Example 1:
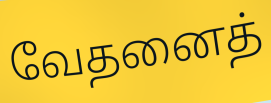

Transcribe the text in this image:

வேதனைத்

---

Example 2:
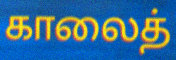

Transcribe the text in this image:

காலைத்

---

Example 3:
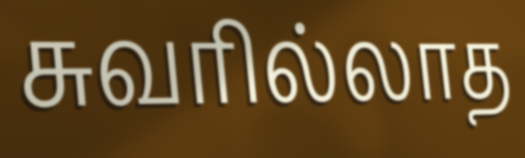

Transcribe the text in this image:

சுவரில்லாத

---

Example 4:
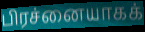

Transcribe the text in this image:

பிரச்னையாகக்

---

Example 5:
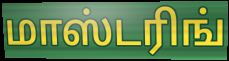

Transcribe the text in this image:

மாஸ்டரிங்